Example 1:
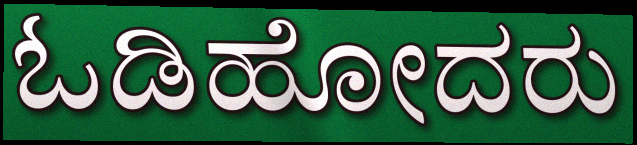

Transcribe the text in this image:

ಓಡಿಹೋದರು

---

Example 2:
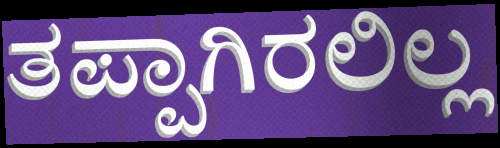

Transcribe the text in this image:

ತಪ್ಪಾಗಿರಲಿಲ್ಲ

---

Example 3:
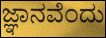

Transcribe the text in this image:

ಜ್ಞಾನವೆಂದು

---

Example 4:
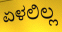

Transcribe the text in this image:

ಏಳಲಿಲ್ಲ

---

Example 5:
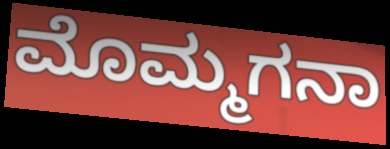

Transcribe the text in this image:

ಮೊಮ್ಮಗನಾ